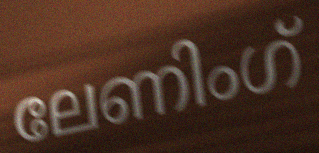
ലേണിംഗ്